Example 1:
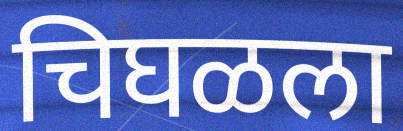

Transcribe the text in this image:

चिघळला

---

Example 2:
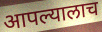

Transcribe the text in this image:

आपल्यालाच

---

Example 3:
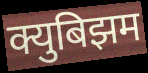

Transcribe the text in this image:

क्युबिझम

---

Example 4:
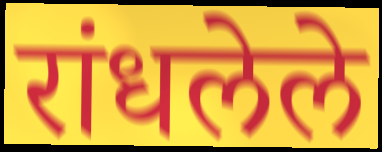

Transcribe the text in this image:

रांधलेले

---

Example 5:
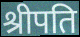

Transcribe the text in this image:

श्रीपति